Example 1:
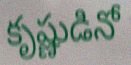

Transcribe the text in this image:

కృష్ణుడినో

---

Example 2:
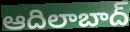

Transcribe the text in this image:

ఆదిలాబాద్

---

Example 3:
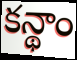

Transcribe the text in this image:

కన్థాం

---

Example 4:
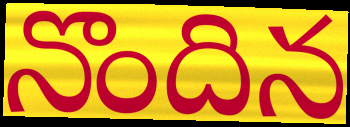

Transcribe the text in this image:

నొందిన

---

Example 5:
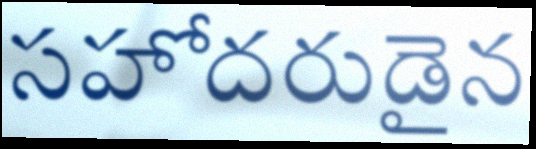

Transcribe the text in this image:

సహోదరుడైన